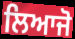
ਲਿਆਜੋ